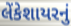
લેંકેશાયરનું